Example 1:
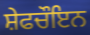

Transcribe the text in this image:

ਸ਼ੇਫਚੌਇਨ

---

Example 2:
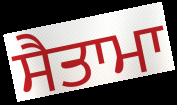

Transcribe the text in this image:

ਸੈਤਾਮਾ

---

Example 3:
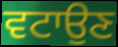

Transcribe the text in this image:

ਵਟਾਉਣ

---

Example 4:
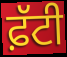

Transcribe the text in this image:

ਫ਼ੱਟੀ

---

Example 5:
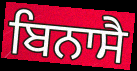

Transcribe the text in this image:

ਬਿਨਾਸੈ